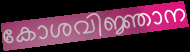
കോശവിജ്ഞാന